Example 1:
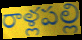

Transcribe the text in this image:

రాళ్లపల్లి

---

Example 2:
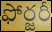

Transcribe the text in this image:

ఫోర్జరీ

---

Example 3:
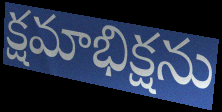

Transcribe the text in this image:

క్షమాభిక్షను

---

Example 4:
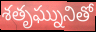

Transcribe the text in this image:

శతృఘ్నునితో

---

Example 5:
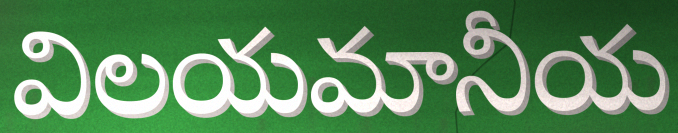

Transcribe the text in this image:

విలయమానీయ